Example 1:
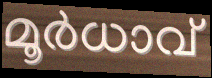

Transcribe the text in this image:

മൂർധാവ്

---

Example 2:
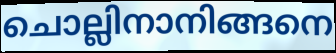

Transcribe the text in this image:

ചൊല്ലിനാനിങ്ങനെ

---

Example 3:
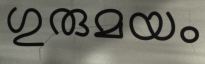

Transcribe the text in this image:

ഗുരുമയം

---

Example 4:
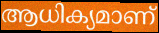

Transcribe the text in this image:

ആധിക്യമാണ്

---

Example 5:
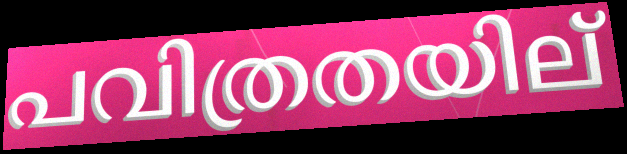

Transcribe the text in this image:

പവിത്രതയില്